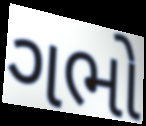
ગભો